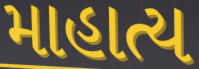
માહાત્ય